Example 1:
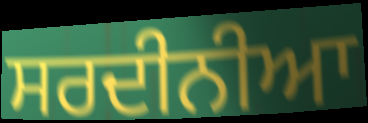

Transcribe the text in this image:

ਸਰਦੀਨੀਆ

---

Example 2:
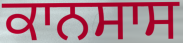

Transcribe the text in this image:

ਕਾਨਸਾਸ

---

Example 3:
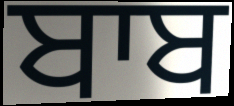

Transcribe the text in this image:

ਬਾਬ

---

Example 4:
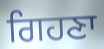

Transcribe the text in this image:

ਗਿਹਣਾ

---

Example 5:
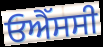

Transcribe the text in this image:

ਓਐੱਸਸੀ